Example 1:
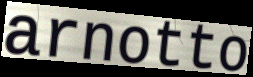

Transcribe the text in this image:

arnotto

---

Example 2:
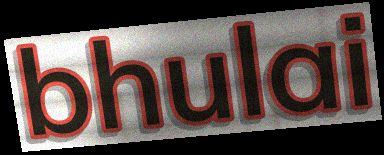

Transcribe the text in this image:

bhulai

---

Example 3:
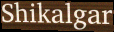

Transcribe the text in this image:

Shikalgar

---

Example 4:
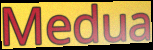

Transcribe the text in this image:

Medua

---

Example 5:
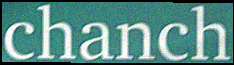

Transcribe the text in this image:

chanch